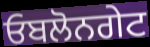
ਓਬਲੋਨਗੇਟ